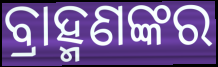
ବ୍ରାହ୍ମଣଙ୍କର